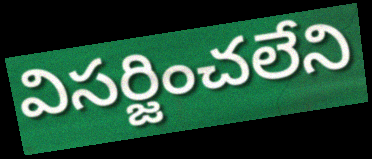
విసర్జించలేని